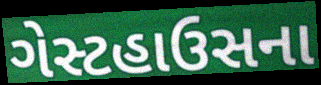
ગેસ્ટહાઉસના